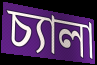
চ্যালা